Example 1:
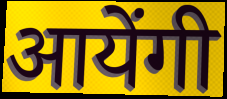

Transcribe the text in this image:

आयेंगी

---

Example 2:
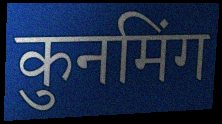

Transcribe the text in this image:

कुनमिंग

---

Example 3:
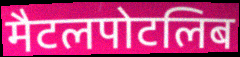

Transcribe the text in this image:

मैटलपोटलिब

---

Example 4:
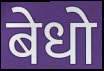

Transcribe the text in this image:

बेधो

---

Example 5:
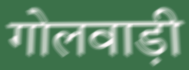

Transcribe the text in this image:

गोलवाड़ी